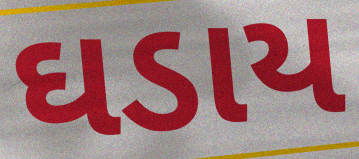
ઘડાય